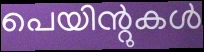
പെയിന്റുകൾ